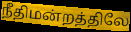
நீதிமன்றத்திலே